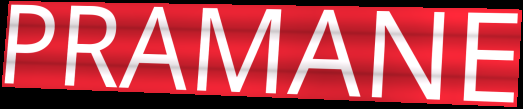
PRAMANE